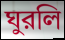
ঘুরলি